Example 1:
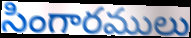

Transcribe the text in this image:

సింగారములు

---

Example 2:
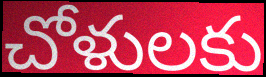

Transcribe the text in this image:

చోళులకు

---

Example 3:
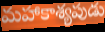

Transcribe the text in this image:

మహాకాశ్యపుడు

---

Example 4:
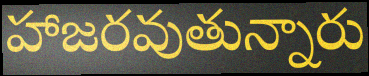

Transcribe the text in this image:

హాజరవుతున్నారు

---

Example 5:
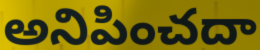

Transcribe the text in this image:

అనిపించదా